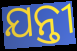
ଯନ୍ତୀ